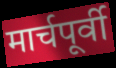
मार्चपूर्वी